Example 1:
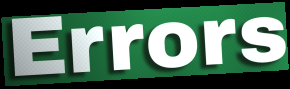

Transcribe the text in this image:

Errors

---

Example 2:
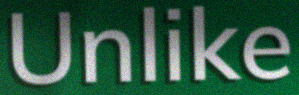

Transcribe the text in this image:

Unlike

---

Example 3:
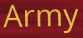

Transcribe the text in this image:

Army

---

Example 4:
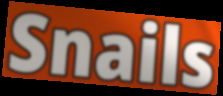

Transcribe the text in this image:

Snails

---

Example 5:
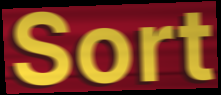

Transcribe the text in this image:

Sort